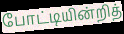
போட்டியின்றித்